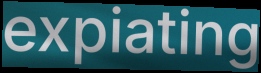
expiating